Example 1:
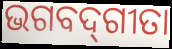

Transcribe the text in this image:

ଭଗବଦ୍‌ଗୀତା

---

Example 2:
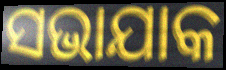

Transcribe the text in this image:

ସଭାଯାକ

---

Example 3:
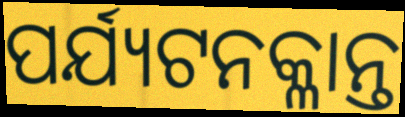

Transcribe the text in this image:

ପର୍ଯ୍ୟଟନକ୍ଳାନ୍ତ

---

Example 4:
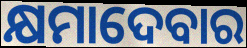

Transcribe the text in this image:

କ୍ଷମାଦେବାର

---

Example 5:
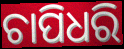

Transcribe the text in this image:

ଚାପିଧରି